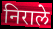
निराले